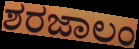
ಶರಜಾಲಂ